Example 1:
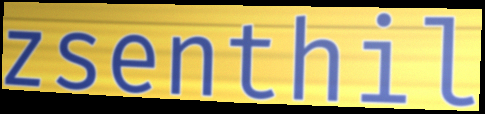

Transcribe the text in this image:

zsenthil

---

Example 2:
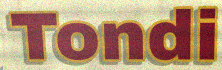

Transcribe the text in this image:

Tondi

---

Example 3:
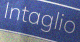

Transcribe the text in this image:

Intaglio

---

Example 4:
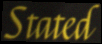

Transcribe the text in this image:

Stated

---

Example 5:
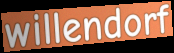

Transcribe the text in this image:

willendorf